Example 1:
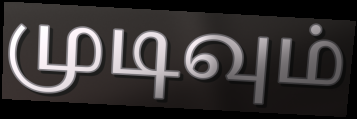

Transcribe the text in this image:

முடிவும்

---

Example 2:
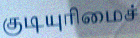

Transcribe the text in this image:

குடியுரிமைச்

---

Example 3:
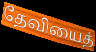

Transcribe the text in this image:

தேவியைத்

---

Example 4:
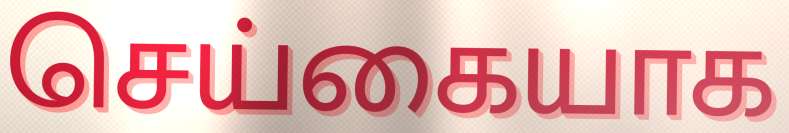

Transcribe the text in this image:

செய்கையாக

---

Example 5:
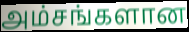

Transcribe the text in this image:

அம்சங்களான